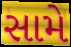
સામે